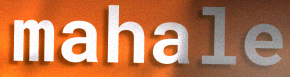
mahale